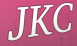
JKC